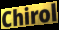
Chirol